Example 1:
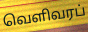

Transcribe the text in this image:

வெளிவரப்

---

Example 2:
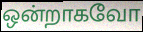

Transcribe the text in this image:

ஒன்றாகவோ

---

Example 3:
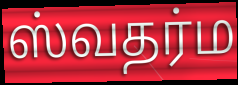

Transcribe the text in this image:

ஸ்வதர்ம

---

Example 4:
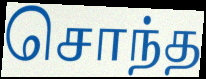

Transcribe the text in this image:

சொந்த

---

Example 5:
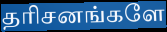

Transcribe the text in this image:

தரிசனங்களே